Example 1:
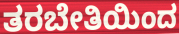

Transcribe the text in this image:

ತರಬೇತಿಯಿಂದ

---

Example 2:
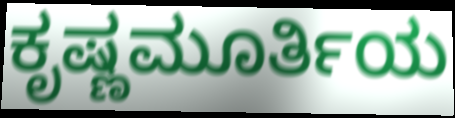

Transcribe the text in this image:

ಕೃಷ್ಣಮೂರ್ತಿಯ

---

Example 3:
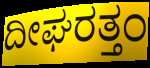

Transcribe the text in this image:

ದೀಘರತ್ತಂ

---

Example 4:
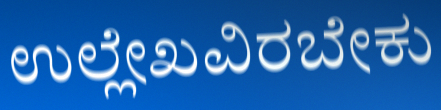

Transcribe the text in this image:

ಉಲ್ಲೇಖವಿರಬೇಕು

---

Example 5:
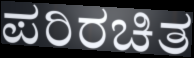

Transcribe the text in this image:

ಪರಿರಚಿತ